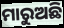
ମାରୁଅଛି